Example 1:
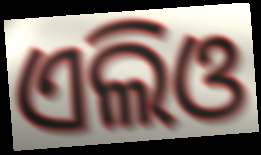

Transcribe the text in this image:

ଏଲିଓ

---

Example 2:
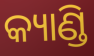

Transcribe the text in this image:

କ୍ୟାଣ୍ଡି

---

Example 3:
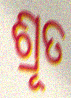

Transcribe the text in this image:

ଶ୍ରୂତ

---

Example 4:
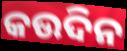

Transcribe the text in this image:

କଉଦିନ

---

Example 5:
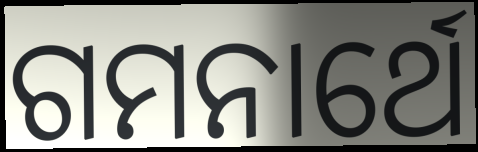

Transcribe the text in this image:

ଗମନାର୍ଥେ